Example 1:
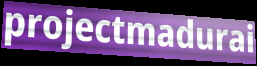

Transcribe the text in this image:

projectmadurai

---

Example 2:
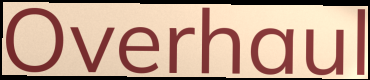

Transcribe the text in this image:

Overhaul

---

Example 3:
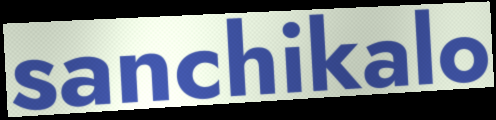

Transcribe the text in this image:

sanchikalo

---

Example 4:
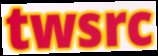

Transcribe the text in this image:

twsrc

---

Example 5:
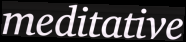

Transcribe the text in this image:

meditative